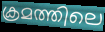
ക്രമത്തിലെ